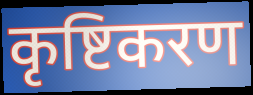
कृष्टिकरण